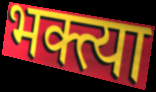
भक्त्या